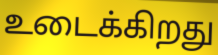
உடைக்கிறது